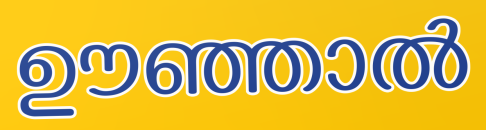
ഊഞ്ഞാൽ